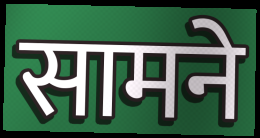
सामने